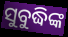
ସୁବୁଦ୍ଧିଙ୍କ